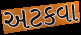
અટકવા